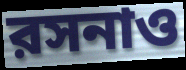
রসনাও